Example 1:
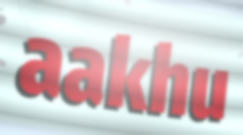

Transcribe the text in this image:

aakhu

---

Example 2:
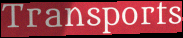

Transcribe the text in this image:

Transports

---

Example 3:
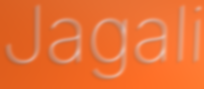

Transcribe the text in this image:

Jagali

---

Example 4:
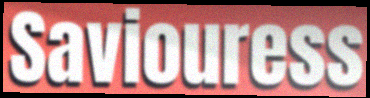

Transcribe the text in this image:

Saviouress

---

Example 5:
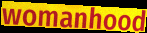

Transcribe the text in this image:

womanhood